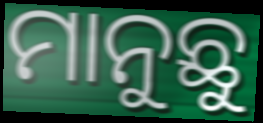
ମାନୁଛୁ